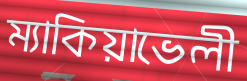
ম্যাকিয়াভেলী